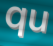
qu